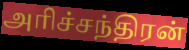
அரிச்சந்திரன்